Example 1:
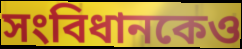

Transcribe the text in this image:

সংবিধানকেও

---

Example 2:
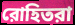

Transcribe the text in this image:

রোহিতরা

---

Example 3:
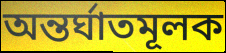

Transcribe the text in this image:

অন্তর্ঘাতমূলক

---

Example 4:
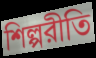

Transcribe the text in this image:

শিল্পরীতি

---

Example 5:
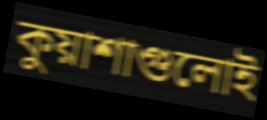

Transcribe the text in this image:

কুয়াশাগুলোই